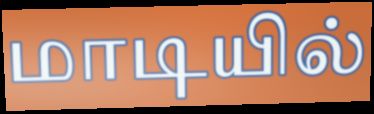
மாடியில்